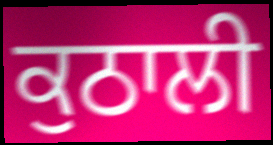
ਕੁਠਾਲੀ